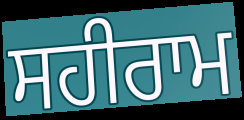
ਸਹੀਰਾਮ